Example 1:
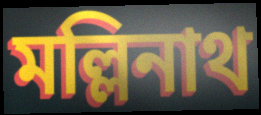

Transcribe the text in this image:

মল্লিনাথ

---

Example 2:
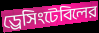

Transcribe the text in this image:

ড্রেসিংটেবিলের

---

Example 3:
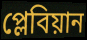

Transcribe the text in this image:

প্লেবিয়ান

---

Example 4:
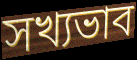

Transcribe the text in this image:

সখ্যভাব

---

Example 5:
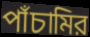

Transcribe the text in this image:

পাঁচামির